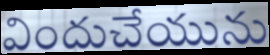
విందుచేయును